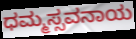
ಧಮ್ಮಸ್ಸವನಾಯ